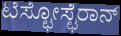
ಟೆಸ್ಟೋಸ್ಟೆರಾನ್